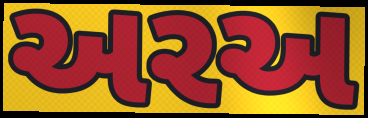
અરઅ